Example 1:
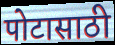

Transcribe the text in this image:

पोटासाठी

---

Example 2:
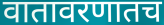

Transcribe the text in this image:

वातावरणातच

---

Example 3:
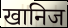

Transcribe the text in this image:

खानिज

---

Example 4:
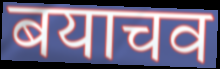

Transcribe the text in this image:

बयाचव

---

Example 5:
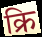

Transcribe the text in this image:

क्रि